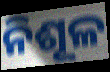
ନିଶୂଳ